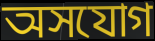
অসযোগ